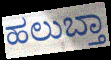
ಹಲುಬ್ತಾ